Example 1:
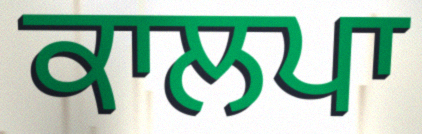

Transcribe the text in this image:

ਕਾਲਪਾ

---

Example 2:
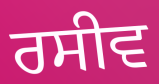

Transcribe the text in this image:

ਰਸੀਵ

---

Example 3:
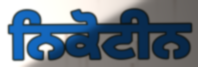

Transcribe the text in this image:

ਨਿਕੋਟੀਨ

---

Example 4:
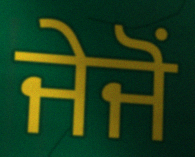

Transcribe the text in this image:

ਜੇਜੋਂ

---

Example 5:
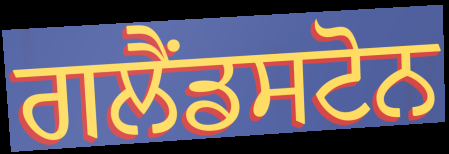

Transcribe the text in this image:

ਗਲੈਂਡਸਟੋਨ